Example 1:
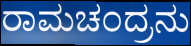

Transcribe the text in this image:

ರಾಮಚಂದ್ರನು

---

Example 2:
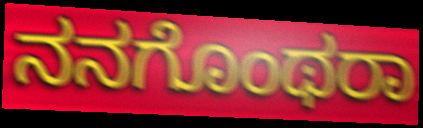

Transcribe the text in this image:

ನನಗೊಂಥರಾ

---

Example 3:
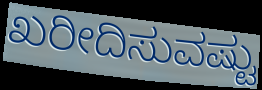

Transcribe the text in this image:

ಖರೀದಿಸುವಷ್ಟು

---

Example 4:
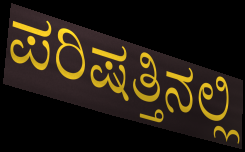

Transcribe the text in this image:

ಪರಿಷತ್ತಿನಲ್ಲಿ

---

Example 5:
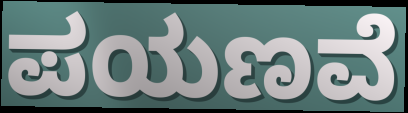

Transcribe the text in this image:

ಪಯಣವೆ